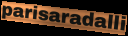
parisaradalli